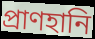
প্রাণহানি